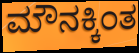
ಮೌನಕ್ಕಿಂತ